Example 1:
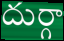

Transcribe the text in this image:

దుర్గా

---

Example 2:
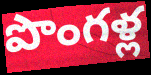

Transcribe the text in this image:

పొంగళ్ల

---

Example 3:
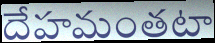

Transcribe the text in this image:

దేహమంతటా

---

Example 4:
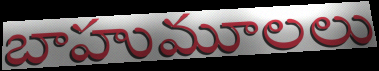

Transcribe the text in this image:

బాహుమూలలు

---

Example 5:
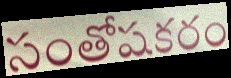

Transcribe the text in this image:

సంతోషకరం